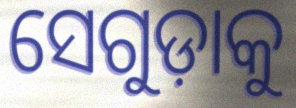
ସେଗୁଡ଼ାକୁ